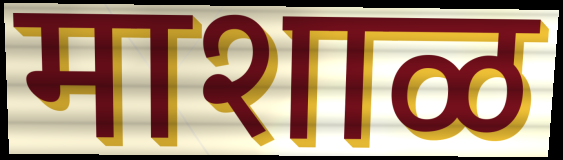
माशाळ